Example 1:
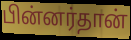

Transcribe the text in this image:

பின்னர்தான்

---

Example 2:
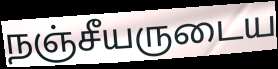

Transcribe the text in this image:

நஞ்சீயருடைய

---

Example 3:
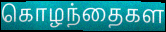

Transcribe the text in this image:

கொழந்தைகள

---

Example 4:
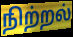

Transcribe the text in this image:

நிற்றல்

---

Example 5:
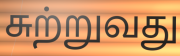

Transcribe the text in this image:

சுற்றுவது